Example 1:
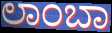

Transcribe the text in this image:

ಲಾಂಬಾ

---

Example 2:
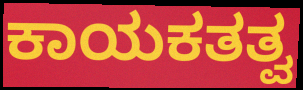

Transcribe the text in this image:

ಕಾಯಕತತ್ವ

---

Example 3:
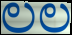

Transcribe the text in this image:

ಲಲ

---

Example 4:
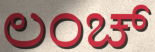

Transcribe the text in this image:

ಲಂಚ್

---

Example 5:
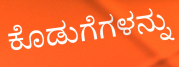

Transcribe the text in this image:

ಕೊಡುಗೆಗಳನ್ನು